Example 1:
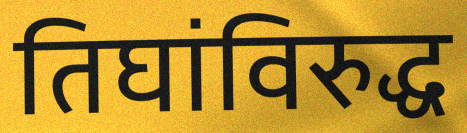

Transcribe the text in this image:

तिघांविरुद्ध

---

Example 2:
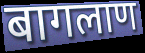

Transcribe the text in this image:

बागलाण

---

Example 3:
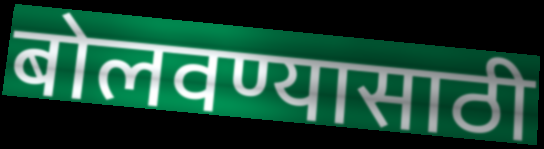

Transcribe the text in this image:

बोलवण्यासाठी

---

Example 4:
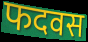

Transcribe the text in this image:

फदवस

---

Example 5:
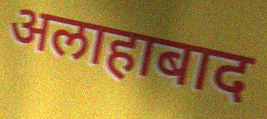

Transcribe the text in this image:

अलाहाबाद